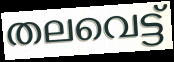
തലവെട്ട്